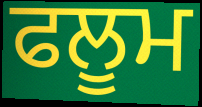
ਫਲੂਮ